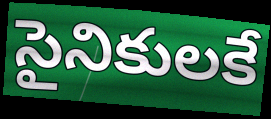
సైనికులకే